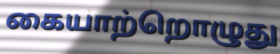
கையாற்றொழுது